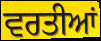
ਵਰਤੀਆਂ